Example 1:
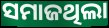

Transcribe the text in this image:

ସମାଜଥିଲା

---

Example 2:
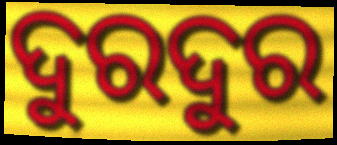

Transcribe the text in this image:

ଦୁରଦୁର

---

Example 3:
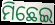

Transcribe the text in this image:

ମିଛେଇ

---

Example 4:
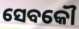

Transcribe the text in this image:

ସେବକୌ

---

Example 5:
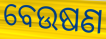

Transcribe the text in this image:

ବେଉଷଣ